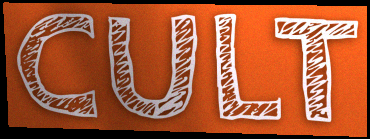
CULT